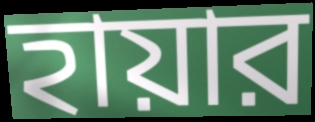
হায়ার